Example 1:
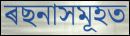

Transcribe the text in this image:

ৰছনাসমূহত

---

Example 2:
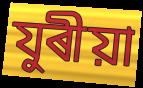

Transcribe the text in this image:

যুৰীয়া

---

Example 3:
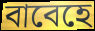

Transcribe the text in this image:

বাবেহে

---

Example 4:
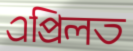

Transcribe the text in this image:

এপ্ৰিলত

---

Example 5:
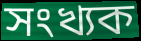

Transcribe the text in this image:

সংখ্যক